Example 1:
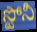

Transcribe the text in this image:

స్టోనీ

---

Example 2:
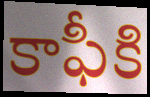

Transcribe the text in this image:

కాఫీకి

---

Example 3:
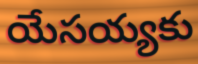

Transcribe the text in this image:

యేసయ్యకు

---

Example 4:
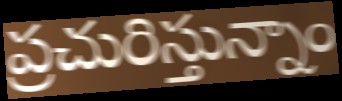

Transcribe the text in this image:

ప్రచురిస్తున్నాం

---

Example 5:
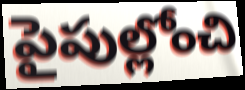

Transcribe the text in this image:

పైపుల్లోంచి